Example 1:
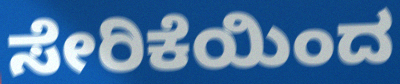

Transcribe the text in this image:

ಸೇರಿಕೆಯಿಂದ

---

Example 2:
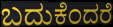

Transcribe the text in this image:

ಬದುಕೆಂದರೆ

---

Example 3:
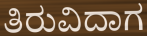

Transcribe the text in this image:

ತಿರುವಿದಾಗ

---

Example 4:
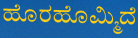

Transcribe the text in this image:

ಹೊರಹೊಮ್ಮಿದೆ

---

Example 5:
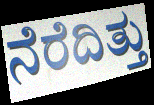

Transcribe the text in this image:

ನೆರೆದಿತ್ತು